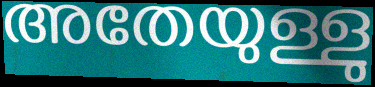
അതേയുള്ളു